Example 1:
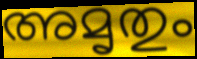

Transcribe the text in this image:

അമൃതും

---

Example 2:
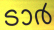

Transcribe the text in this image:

ടാർ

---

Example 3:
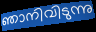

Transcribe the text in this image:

ഞാനിവിടുന്നു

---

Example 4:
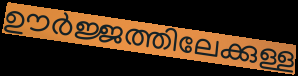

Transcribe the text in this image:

ഊർജ്ജത്തിലേക്കുള്ള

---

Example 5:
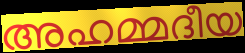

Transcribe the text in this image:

അഹമ്മദീയ